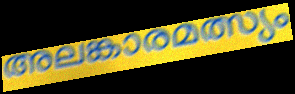
അലങ്കാരമത്സ്യം